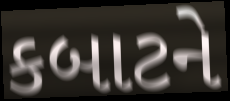
કબાટને